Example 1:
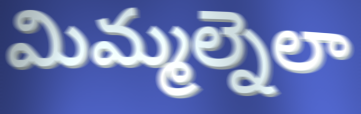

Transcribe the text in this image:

మిమ్మల్నెలా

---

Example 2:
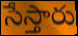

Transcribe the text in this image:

సేస్తారు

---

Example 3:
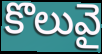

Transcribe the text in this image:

కొలువై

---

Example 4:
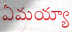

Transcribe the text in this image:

ఏమయ్యా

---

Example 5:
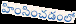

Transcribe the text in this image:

హింసించడంలో